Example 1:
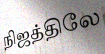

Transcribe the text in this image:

நிஜத்திலே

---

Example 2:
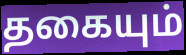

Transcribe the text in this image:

தகையும்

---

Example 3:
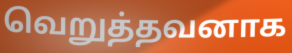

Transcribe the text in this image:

வெறுத்தவனாக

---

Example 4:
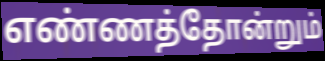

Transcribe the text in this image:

எண்ணத்தோன்றும்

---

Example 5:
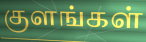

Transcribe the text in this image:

குளங்கள்